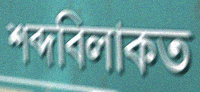
শব্দবিলাকত